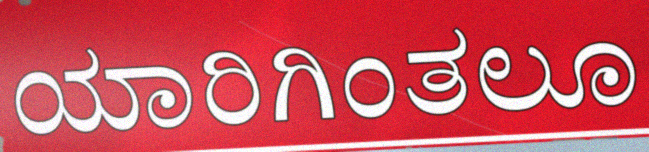
ಯಾರಿಗಿಂತಲೂ